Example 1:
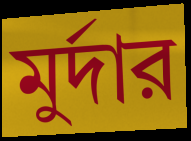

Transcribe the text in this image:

মুর্দার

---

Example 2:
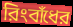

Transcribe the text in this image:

রিংবাঁধের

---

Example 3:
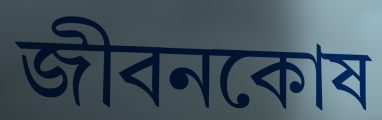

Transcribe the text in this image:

জীবনকোষ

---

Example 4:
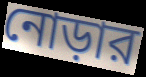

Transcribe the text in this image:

নোড়ার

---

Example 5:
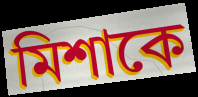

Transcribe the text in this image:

মিশাকে